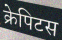
क्रेपिटस